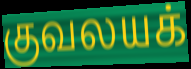
குவலயக்